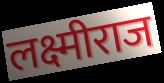
लक्ष्मीराज